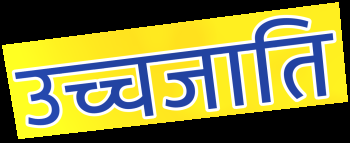
उच्चजाति